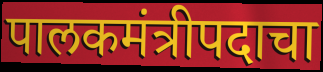
पालकमंत्रीपदाचा